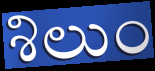
శిలుం